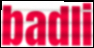
badli